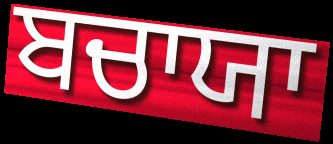
ਬਚਾਯਾ